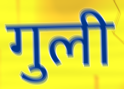
गुली